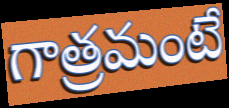
గాత్రమంటే